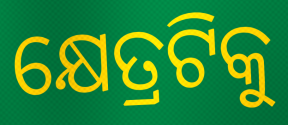
କ୍ଷେତ୍ରଟିକୁ